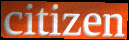
citizen